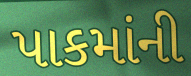
પાકમાંની